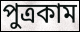
পুত্রকাম